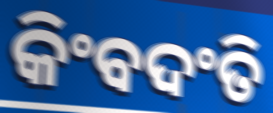
କିଂବଦଂତି